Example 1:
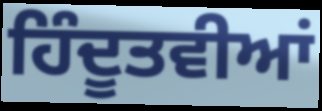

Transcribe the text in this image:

ਹਿੰਦੂਤਵੀਆਂ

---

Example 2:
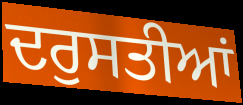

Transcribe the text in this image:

ਦਰੁਸਤੀਆਂ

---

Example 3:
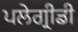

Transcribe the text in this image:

ਪਲੇਗ੍ਰੀਡੀ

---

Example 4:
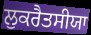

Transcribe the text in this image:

ਲੁਕਰੈਤਸੀਯਾ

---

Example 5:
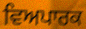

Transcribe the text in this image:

ਵਿਅਪਾਰਕ